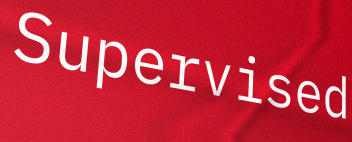
Supervised